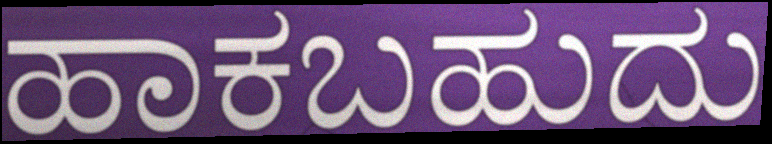
ಹಾಕಬಹುದು